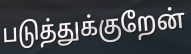
படுத்துக்குறேன்